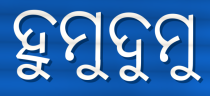
ହୁମୁଦୁମୁ